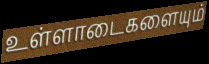
உள்ளாடைகளையும்